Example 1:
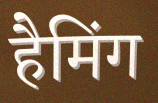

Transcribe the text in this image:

हैमिंग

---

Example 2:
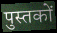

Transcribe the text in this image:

पुस्तकों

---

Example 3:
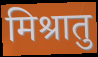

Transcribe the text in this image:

मिश्रातु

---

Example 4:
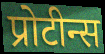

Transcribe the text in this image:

प्रोटीन्स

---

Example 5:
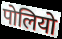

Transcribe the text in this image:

पोलियो